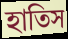
হাতিস